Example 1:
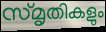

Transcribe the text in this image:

സ്മൃതികളും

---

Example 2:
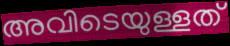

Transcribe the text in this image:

അവിടെയുള്ളത്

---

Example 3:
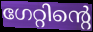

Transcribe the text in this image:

ഗേറ്റിന്റെ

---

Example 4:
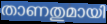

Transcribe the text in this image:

താണതുമായി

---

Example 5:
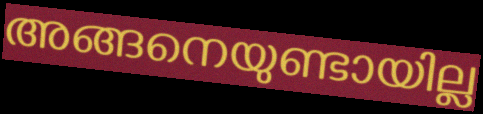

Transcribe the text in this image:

അങ്ങനെയുണ്ടായില്ല